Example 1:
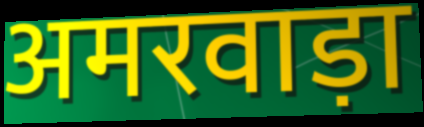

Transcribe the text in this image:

अमरवाड़ा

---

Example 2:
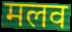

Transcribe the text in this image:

मलव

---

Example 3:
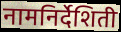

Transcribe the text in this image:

नामनिर्देशिती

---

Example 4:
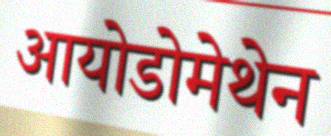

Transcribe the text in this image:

आयोडोमेथेन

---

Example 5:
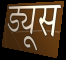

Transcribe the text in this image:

ड्यूस